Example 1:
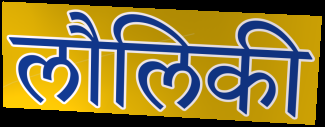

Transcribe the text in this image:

लौलिकी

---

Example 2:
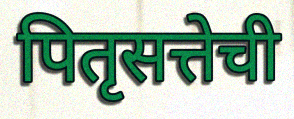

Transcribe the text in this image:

पितृसत्तेची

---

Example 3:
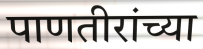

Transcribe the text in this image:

पाणतीरांच्या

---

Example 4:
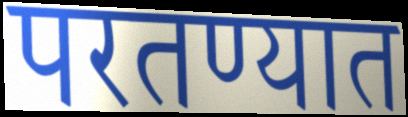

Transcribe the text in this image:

परतण्यात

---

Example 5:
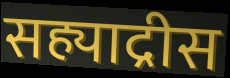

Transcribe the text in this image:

सह्याद्रीस